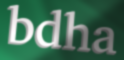
bdha